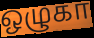
ஒழுகா